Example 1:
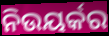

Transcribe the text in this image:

ନିଉୟର୍କର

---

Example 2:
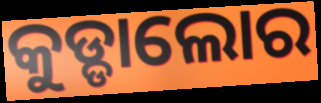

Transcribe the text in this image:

କୁଡ୍ଡାଲୋର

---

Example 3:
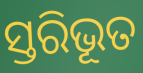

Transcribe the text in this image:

ସ୍ତରିଭୂତ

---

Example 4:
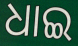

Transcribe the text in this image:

ଧାଇ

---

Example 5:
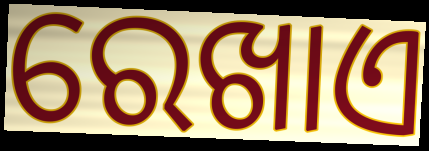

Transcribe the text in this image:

ରେଖାଏ